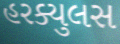
હરક્યુલસ